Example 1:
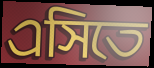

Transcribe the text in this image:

এসিতে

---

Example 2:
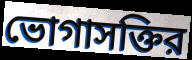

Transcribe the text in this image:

ভোগাসক্তির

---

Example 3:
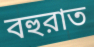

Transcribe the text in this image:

বহুরাত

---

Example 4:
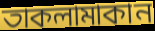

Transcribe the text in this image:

তাকলামাকান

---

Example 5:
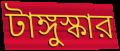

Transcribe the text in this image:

টাঙ্গুস্কার